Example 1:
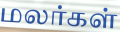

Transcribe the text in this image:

மலர்கள்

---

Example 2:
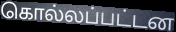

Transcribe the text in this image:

கொல்லப்பட்டன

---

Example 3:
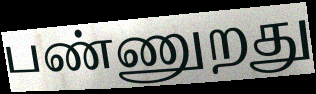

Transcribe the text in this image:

பண்ணுறது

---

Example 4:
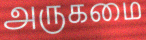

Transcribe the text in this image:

அருகமை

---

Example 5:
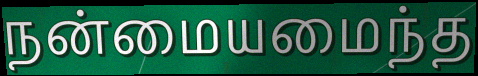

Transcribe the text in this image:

நன்மையமைந்த